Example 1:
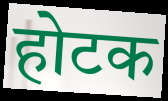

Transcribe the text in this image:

होटक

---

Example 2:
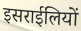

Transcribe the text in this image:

इसराईलियों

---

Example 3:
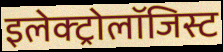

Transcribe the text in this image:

इलेक्ट्रोलॉजिस्ट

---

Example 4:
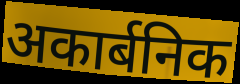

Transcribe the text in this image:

अकार्बनिक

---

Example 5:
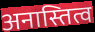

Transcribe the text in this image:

अनास्तित्व